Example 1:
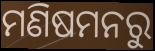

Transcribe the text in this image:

ମଣିଷମନରୁ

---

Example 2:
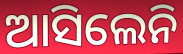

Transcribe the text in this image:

ଆସିଲେନି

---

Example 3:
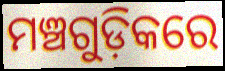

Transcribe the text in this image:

ମଞ୍ଚଗୁଡ଼ିକରେ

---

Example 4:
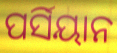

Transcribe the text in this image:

ପର୍ସିୟାନ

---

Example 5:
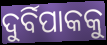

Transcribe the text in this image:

ଦୁର୍ବିପାକକୁ